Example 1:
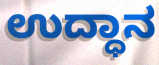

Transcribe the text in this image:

ಉದ್ಧಾನ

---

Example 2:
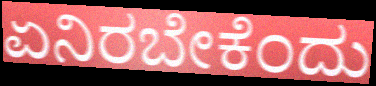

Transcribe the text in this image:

ಏನಿರಬೇಕೆಂದು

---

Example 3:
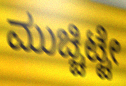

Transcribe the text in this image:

ಮುಚ್ಚಿಟ್ಟೇ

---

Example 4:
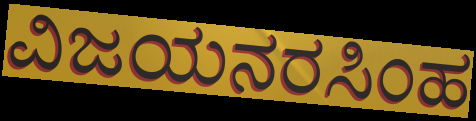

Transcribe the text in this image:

ವಿಜಯನರಸಿಂಹ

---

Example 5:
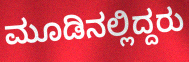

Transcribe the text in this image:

ಮೂಡಿನಲ್ಲಿದ್ದರು